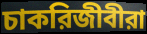
চাকরিজীবীরা